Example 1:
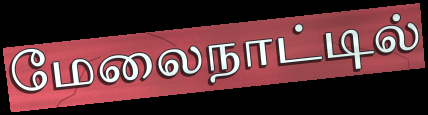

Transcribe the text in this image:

மேலைநாட்டில்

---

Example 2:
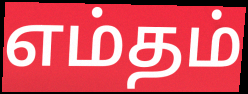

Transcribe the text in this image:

எம்தம்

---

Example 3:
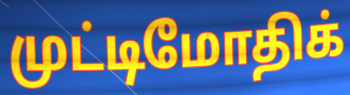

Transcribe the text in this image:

முட்டிமோதிக்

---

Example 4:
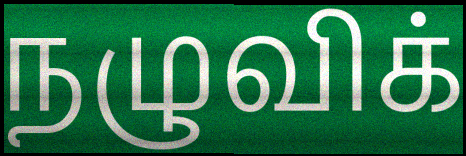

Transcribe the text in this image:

நழுவிக்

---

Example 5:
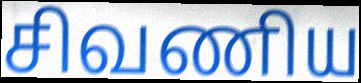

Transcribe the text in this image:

சிவணிய